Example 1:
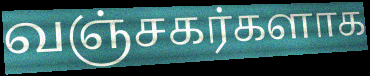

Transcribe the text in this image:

வஞ்சகர்களாக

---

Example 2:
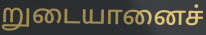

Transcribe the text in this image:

றுடையானைச்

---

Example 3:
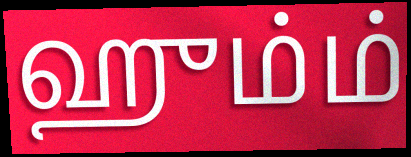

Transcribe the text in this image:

ஹும்ம்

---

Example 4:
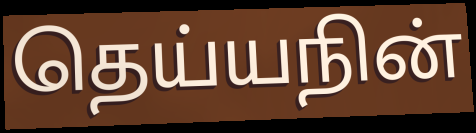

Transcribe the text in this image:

தெய்யநின்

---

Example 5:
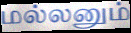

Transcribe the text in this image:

மல்லனும்